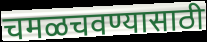
चमळचवण्यासाठी